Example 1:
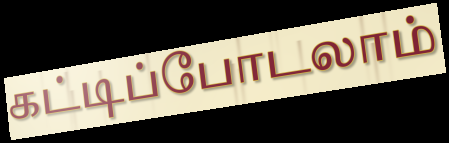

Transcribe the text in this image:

கட்டிப்போடலாம்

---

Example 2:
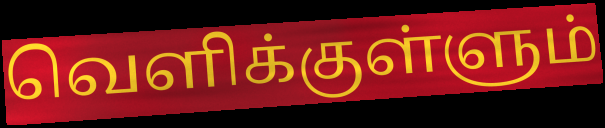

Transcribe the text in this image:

வெளிக்குள்ளும்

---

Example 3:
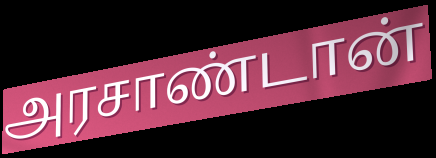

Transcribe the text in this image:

அரசாண்டான்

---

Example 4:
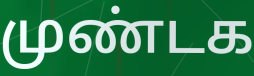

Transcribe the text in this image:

முண்டக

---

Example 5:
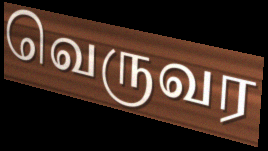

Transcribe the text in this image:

வெருவர